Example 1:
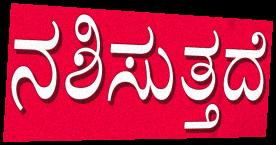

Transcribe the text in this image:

ನಶಿಸುತ್ತದೆ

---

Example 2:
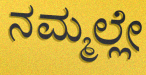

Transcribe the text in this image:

ನಮ್ಮಲ್ಲೇ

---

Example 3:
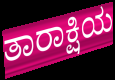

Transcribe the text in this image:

ತಾರಾಕ್ಷಿಯ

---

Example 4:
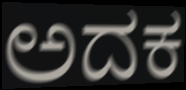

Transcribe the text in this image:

ಅದಕ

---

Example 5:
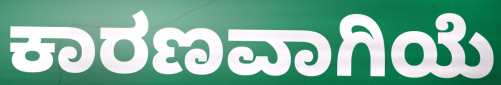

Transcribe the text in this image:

ಕಾರಣವಾಗಿಯೆ